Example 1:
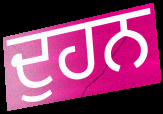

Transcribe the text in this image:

ਦੁਹਨ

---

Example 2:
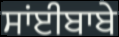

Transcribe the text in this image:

ਸਾਂਈਬਾਬੇ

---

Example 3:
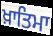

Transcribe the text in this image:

ਖ਼ਾਤਿਮਾ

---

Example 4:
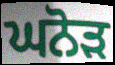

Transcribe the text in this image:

ਘਨੋੜ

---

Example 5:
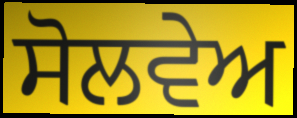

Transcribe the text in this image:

ਸੋਲਵੇਅ